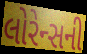
લોરેન્સની